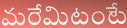
మరేమిటంటే